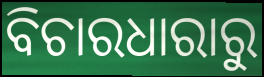
ବିଚାରଧାରାରୁ